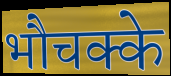
भौचक्के